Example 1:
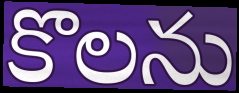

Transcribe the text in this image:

కొలను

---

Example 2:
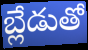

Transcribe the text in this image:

బ్లేడుతో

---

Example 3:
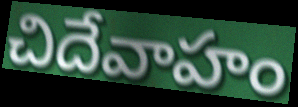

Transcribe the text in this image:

చిదేవాహం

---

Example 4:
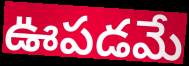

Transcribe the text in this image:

ఊపడమే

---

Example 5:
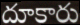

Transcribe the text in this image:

దూకారు